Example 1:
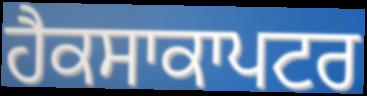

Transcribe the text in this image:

ਹੈਕਸਾਕਾਪਟਰ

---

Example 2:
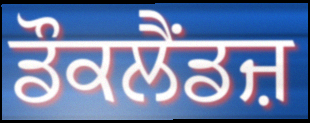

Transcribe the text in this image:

ਡੌਕਲੈਂਡਜ਼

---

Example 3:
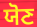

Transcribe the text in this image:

ਯੋਣ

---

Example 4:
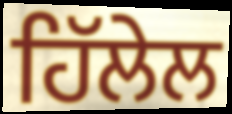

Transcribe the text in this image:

ਹਿੱਲੇਲ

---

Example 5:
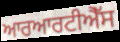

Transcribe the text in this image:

ਆਰਆਰਟੀਐੱਸ